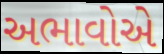
અભાવોએ